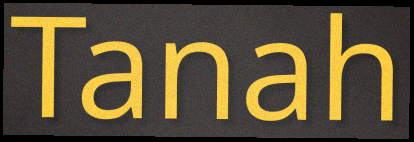
Tanah